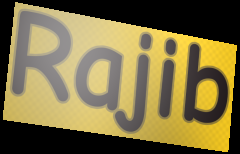
Rajib